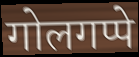
गोलगप्पे